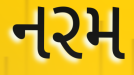
નરમ